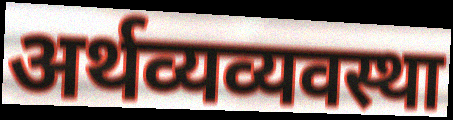
अर्थव्यव्यवस्था